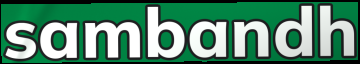
sambandh